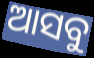
ଆସବୁ